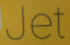
Jet